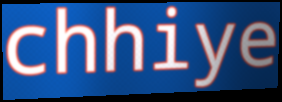
chhiye